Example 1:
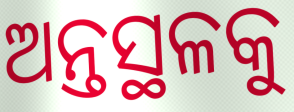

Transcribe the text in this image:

ଅନ୍ତସ୍ଥଳକୁ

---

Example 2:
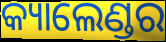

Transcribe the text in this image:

କ୍ୟାଲେଣ୍ଡର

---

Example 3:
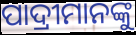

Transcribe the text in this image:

ପାଦ୍ରୀମାନଙ୍କୁ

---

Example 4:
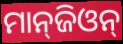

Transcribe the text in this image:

ମାନ୍‌ଜିଓନ୍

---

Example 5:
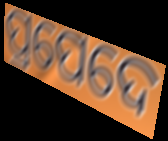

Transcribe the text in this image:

ପ୍ରପେଦେ